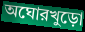
অঘোরখুড়ো